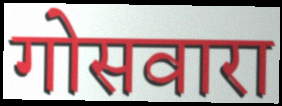
गोसवारा